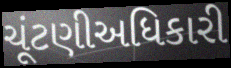
ચૂંટણીઅધિકારી